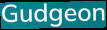
Gudgeon